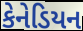
કેનેડિયન